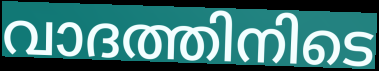
വാദത്തിനിടെ